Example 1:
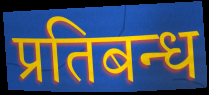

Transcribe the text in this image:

प्रतिबन्ध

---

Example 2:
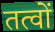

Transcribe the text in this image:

तत्वों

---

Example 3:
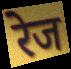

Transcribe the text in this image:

रेज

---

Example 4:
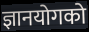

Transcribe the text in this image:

ज्ञानयोगको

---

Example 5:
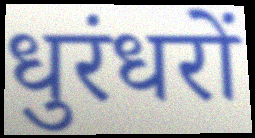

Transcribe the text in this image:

धुरंधरों